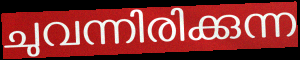
ചുവന്നിരിക്കുന്ന